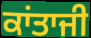
ਕਾਂਤਾਜੀ